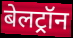
बेलट्रॉन